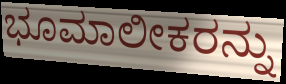
ಭೂಮಾಲೀಕರನ್ನು